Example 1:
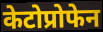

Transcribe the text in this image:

केटोप्रोफेन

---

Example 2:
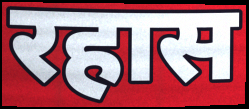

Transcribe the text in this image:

रहास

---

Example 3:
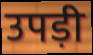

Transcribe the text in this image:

उपड़ी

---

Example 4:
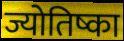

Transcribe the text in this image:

ज्योतिष्का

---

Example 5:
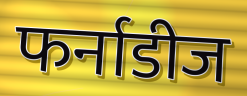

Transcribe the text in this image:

फर्नाडीज